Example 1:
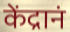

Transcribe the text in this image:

केंद्रानं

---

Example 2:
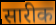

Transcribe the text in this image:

सारीक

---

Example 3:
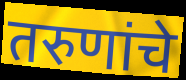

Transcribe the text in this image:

तरुणांचे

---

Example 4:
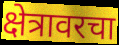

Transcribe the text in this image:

क्षेत्रावरचा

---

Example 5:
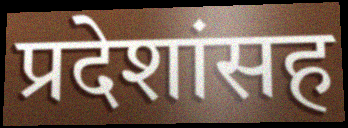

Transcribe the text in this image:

प्रदेशांसह